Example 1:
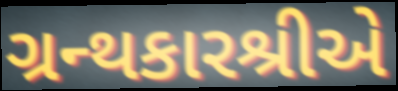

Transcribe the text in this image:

ગ્રન્થકારશ્રીએ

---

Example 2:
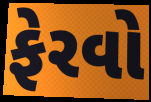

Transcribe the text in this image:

ફેરવો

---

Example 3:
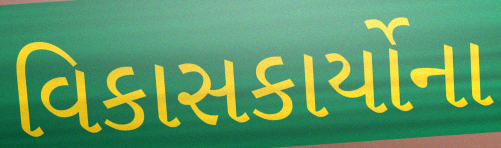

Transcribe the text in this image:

વિકાસકાર્યોના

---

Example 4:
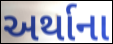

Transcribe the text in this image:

અર્થાના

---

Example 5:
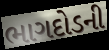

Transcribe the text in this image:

ભાગદોડની